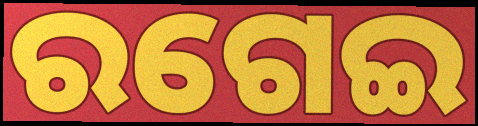
ରଗେଇ